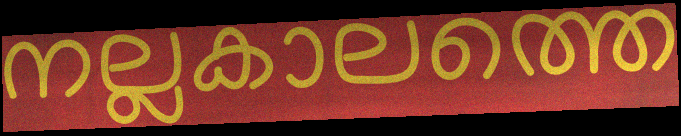
നല്ലകാലത്തെ